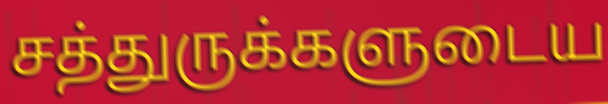
சத்துருக்களுடைய